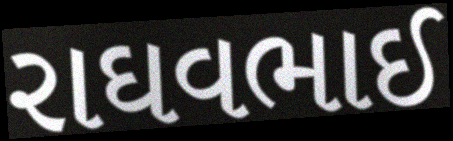
રાઘવભાઈ